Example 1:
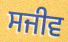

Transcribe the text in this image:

ਸਜੀਵ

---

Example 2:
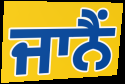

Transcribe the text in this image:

ਜਾਨੈਂ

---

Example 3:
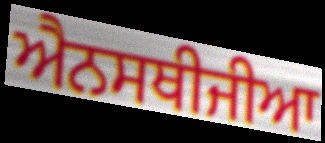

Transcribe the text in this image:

ਐਨਸਥੀਜੀਆ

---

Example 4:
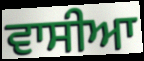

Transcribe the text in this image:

ਵਾਸੀਆ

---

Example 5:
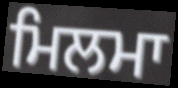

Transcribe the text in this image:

ਮਿਲਮਾ